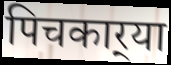
पिचकार्या